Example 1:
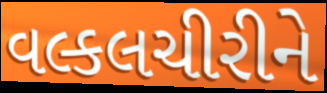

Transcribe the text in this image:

વલ્કલચીરીને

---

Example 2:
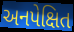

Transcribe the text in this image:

અનપેક્ષિત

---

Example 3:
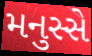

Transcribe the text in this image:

મનુસ્સે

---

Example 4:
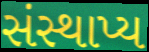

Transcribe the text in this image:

સંસ્થાપ્ય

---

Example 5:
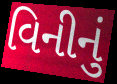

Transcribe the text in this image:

વિનીનું